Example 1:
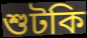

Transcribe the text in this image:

শুটকি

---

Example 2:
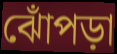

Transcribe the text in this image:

ঝোঁপড়া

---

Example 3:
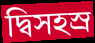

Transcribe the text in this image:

দ্বিসহস্র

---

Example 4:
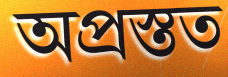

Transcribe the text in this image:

অপ্রস্তত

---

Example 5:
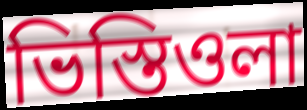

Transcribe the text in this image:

ভিস্তিওলা